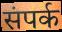
संपर्क